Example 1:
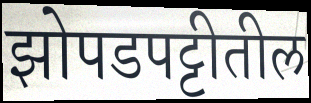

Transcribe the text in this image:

झोपडपट्टीतील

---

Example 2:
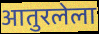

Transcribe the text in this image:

आतुरलेला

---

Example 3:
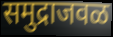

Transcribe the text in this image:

समुद्राजवळ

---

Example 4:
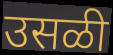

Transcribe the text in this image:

उसळी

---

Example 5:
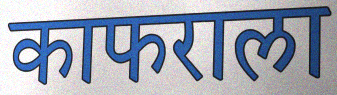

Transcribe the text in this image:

काफराला